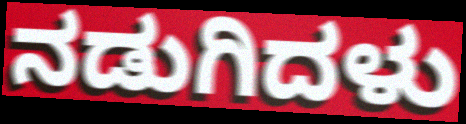
ನಡುಗಿದಳು